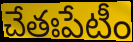
చేతఃపేటీం